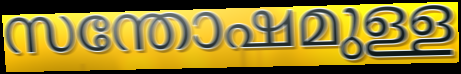
സന്തോഷമുള്ള